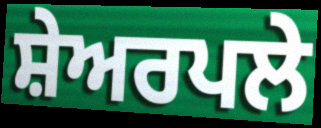
ਸ਼ੇਅਰਪਲੇ